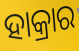
ହାକ୍ରାର